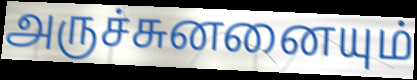
அருச்சுனனையும்